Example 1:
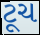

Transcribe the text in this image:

ટૂચ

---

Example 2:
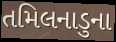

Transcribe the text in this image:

તમિલનાડુના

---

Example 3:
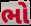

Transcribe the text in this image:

ભો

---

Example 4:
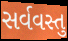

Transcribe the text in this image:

સર્વવસ્તુ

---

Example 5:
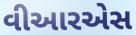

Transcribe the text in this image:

વીઆરએસ